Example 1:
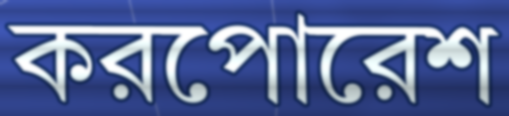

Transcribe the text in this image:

করপোরেশ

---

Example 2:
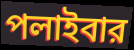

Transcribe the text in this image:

পলাইবার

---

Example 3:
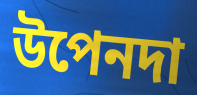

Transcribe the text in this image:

উপেনদা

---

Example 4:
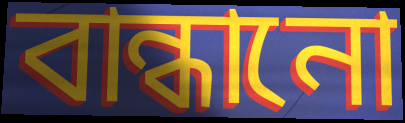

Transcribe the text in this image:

বান্ধানো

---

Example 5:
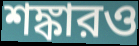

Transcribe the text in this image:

শঙ্কারও